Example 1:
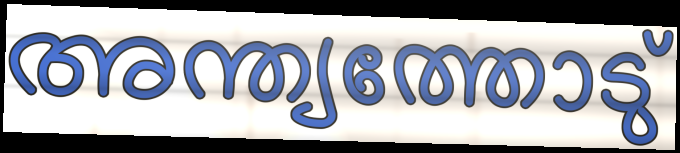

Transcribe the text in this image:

അന്ത്യത്തോടു്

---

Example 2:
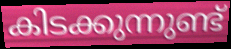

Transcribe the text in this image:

കിടക്കുന്നുണ്ട്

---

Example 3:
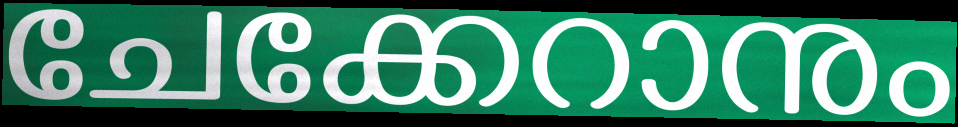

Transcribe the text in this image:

ചേക്കേറാനും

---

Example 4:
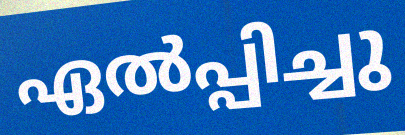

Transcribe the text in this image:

ഏൽപ്പിച്ചു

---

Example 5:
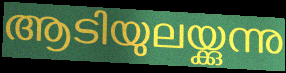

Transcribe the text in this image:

ആടിയുലയ്ക്കുന്നു